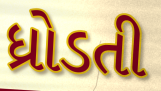
ધ્રોડતી